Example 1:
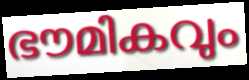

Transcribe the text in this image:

ഭൗമികവും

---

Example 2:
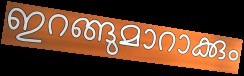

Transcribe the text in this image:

ഇറങ്ങുമാറാക്കും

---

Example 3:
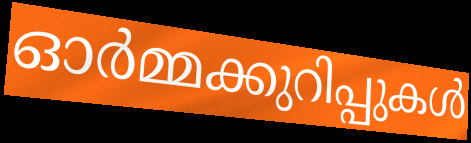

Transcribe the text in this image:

ഓർമ്മക്കുറിപ്പുകൾ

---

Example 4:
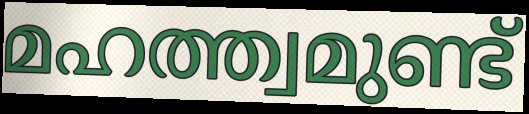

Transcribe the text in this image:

മഹത്ത്വമുണ്ട്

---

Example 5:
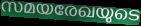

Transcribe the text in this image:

സമയരേഖയുടെ